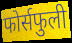
फोर्सफुली